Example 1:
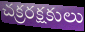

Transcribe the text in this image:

చక్రరక్షకులు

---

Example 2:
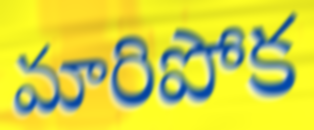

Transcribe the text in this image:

మారిపోక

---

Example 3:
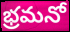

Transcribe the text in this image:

భ్రమనో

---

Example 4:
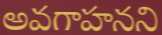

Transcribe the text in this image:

అవగాహనని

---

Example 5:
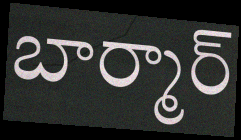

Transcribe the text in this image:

బార్మార్